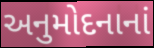
અનુમોદનાનાં